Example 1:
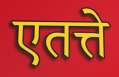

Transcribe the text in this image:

एतत्ते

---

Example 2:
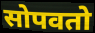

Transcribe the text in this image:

सोपवतो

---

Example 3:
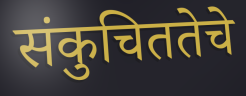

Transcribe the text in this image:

संकुचिततेचे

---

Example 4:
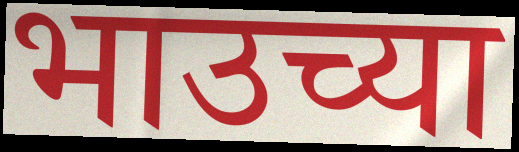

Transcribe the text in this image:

भाउच्या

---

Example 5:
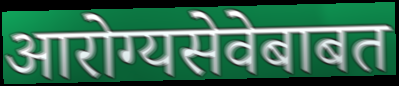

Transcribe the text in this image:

आरोग्यसेवेबाबत